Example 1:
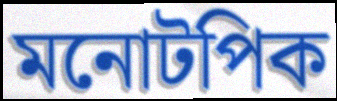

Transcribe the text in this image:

মনোটপিক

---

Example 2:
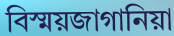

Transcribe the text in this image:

বিস্ময়জাগানিয়া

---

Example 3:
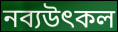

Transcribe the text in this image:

নব্যউৎকল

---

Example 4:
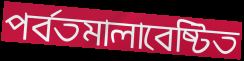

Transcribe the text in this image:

পর্বতমালাবেষ্টিত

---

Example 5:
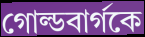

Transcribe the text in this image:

গোল্ডবার্গকে